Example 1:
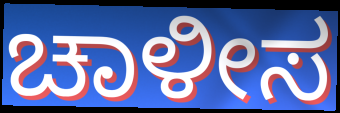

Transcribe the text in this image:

ಚಾಳೀಸ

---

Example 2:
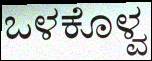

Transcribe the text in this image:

ಒಳಕೊಳ್ವ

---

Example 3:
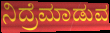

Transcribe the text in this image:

ನಿದ್ರೆಮಾಡುವ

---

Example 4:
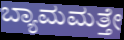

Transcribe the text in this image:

ಬ್ಯಾಮಮತ್ತೇ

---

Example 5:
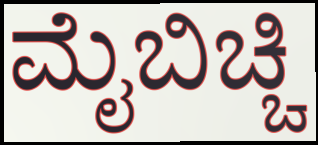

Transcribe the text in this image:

ಮೈಬಿಚ್ಚಿ